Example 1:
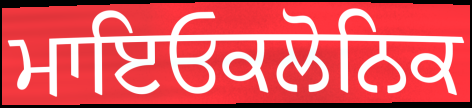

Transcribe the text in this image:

ਮਾਇਓਕਲੋਨਿਕ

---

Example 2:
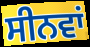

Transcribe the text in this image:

ਸੀਨਵਾਂ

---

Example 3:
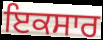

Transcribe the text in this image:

ਇਕਸਾਰ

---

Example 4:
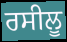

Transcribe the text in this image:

ਰਸੀਲੂ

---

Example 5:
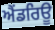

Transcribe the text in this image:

ਐਂਡਰਿਊ